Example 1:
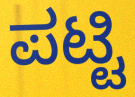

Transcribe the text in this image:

ಪಟ್ಟಿ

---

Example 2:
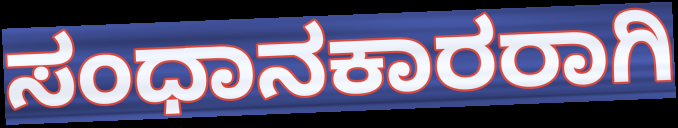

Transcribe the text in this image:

ಸಂಧಾನಕಾರರಾಗಿ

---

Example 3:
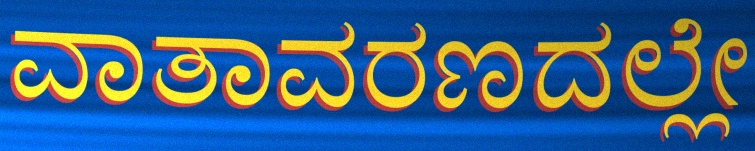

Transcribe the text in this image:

ವಾತಾವರಣದಲ್ಲೇ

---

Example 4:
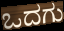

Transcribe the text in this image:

ಒದಗು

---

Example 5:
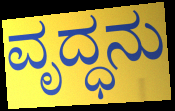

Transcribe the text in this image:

ವೃದ್ಧನು